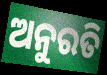
ଅନୁରତି